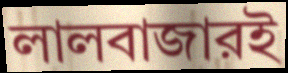
লালবাজারই